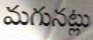
మగునట్లు